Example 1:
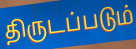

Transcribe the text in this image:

திருடப்படும்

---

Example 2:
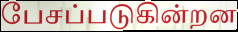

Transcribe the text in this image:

பேசப்படுகின்றன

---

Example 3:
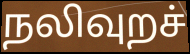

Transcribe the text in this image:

நலிவுறச்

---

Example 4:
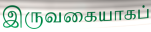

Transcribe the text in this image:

இருவகையாகப்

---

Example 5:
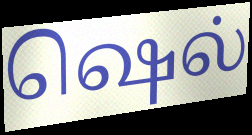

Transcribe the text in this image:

ஷெல்